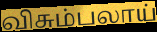
விசும்பலாய்